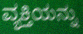
ವ್ಯಕ್ತಿಯನ್ನು